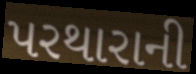
પરથારાની